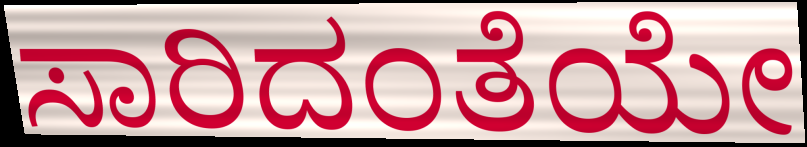
ಸಾರಿದಂತೆಯೇ